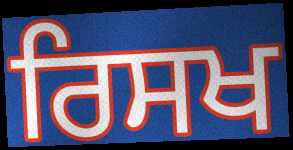
ਰਿਸਖ